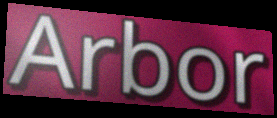
Arbor